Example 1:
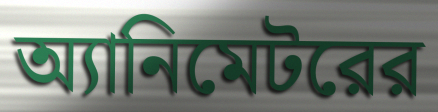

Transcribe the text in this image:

অ্যানিমেটরের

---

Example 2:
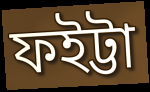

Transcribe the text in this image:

ফইট্টা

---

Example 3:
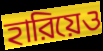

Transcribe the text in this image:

হারিয়েও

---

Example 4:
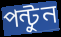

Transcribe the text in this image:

পন্টুন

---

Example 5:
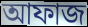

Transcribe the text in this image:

আফাজ